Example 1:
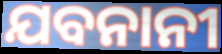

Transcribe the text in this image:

ଯବନାନୀ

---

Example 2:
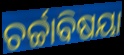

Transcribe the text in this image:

ଚର୍ଚ୍ଚାବିଷୟା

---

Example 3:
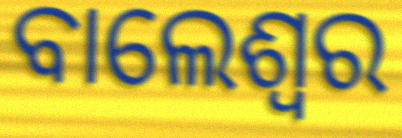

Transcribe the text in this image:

ବାଲେଶ୍ବର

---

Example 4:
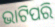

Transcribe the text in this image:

ଭାଟିପରି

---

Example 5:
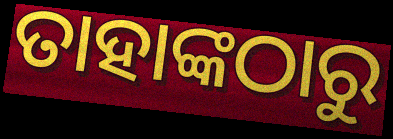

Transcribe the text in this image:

ତାହାଙ୍କଠାରୁ